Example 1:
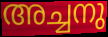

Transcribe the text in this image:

അച്ചനു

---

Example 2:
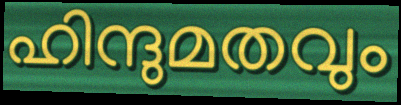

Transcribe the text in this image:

ഹിന്ദുമതവും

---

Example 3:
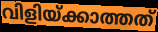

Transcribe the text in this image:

വിളിയ്ക്കാത്തത്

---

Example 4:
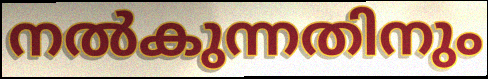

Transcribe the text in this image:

നൽകുന്നതിനും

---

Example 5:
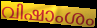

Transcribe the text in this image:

വിഷാംശം